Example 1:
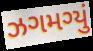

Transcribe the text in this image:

ઝગમગ્યું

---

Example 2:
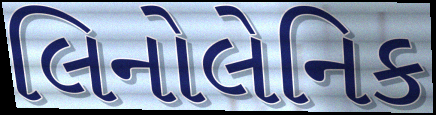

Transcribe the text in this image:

લિનોલેનિક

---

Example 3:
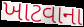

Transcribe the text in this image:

ખાટવાના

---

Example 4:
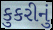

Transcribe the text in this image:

કુકરીનું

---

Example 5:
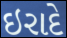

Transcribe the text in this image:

ઇરાદે